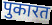
पुकारत